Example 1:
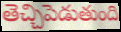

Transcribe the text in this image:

తెచ్చిపెడుతుంది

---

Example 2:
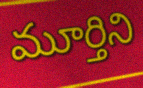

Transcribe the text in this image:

మూర్తిని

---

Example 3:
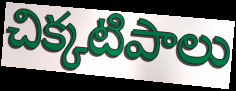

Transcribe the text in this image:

చిక్కటిపాలు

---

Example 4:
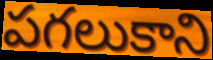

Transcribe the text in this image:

పగలుకాని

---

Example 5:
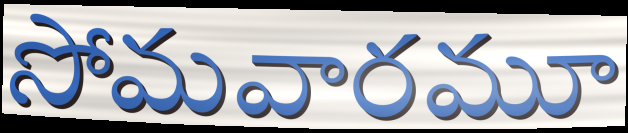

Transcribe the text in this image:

సోమవారమూ